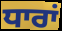
ਧਾਰਾਂ